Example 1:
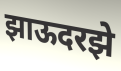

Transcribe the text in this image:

झाऊदरझे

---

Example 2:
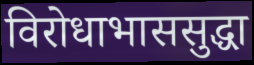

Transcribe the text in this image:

विरोधाभाससुद्धा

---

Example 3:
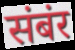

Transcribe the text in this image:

संबंर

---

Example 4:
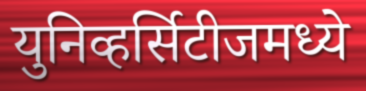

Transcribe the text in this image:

युनिव्हर्सिटीजमध्ये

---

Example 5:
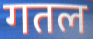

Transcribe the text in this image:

गतल